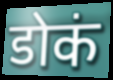
डोकं